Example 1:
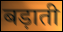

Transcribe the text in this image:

बड़ाती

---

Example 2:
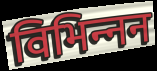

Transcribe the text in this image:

विभिन्नन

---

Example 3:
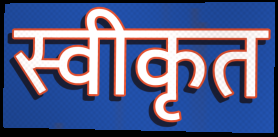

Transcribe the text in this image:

स्वीकृत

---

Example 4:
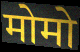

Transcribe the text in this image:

मोमो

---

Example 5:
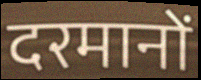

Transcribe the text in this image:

दरमानों